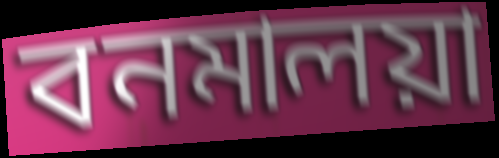
বনমালয়া